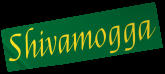
Shivamogga